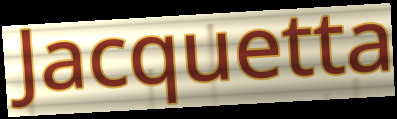
Jacquetta